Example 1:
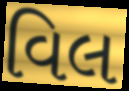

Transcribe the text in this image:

વિલ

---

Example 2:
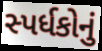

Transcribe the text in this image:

સ્પર્ધકોનું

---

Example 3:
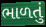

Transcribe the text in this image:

ભાળતું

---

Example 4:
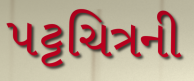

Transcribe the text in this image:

પટ્ટચિત્રની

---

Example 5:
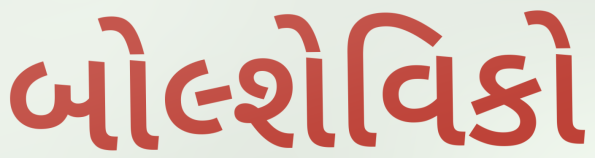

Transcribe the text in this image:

બોલ્શેવિકો